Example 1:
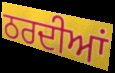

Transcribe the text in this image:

ਠਰਦੀਆਂ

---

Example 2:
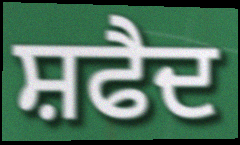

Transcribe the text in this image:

ਸ਼ਫੈਦ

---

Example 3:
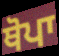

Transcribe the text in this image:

ਥੋਪਾ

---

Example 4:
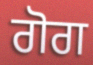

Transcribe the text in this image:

ਗੋਗ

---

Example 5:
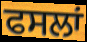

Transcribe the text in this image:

ਫਸਲਾਂ